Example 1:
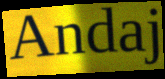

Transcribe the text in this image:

Andaj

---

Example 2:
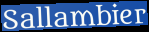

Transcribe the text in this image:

Sallambier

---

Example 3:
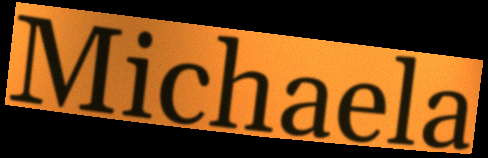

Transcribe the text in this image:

Michaela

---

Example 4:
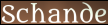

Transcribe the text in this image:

Schande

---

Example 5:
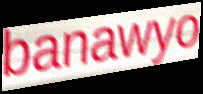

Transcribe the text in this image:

banawyo